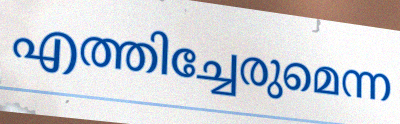
എത്തിച്ചേരുമെന്ന